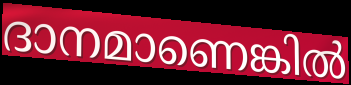
ദാനമാണെങ്കിൽ